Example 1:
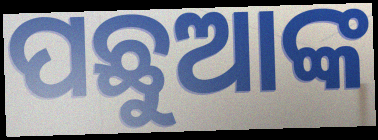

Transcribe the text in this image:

ପଛୁଆଙ୍କ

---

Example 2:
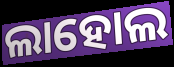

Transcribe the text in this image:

ଲାହୋଲ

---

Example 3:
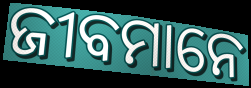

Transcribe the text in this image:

ଜୀବମାନେ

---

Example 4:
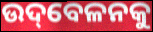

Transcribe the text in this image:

ଉଦ୍‌ବେଳନକୁ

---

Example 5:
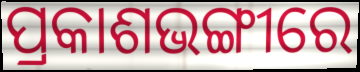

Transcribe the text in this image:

ପ୍ରକାଶଭଙ୍ଗୀରେ